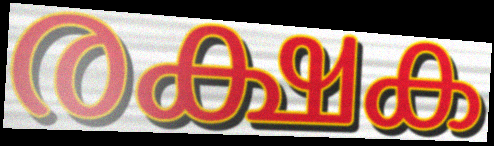
രക്ഷക